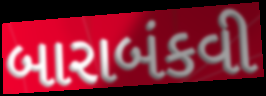
બારાબંકવી